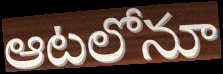
ఆటలోనూ